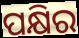
ପକ୍ଷିର